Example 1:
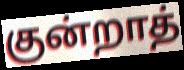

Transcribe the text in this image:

குன்றாத்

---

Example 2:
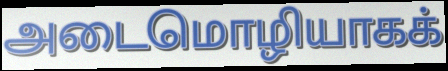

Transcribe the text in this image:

அடைமொழியாகக்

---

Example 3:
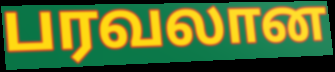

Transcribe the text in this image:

பரவலான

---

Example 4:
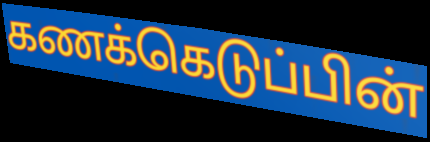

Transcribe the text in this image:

கணக்கெடுப்பின்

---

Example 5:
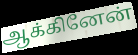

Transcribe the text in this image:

ஆக்கினேன்